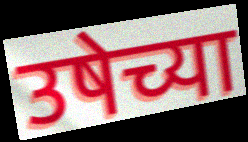
उषेच्या